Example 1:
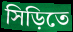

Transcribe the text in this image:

সিড়িতে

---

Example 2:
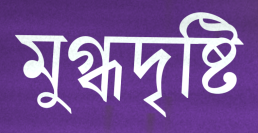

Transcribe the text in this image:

মুগ্ধদৃষ্টি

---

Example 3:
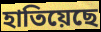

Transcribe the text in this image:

হাতিয়েছে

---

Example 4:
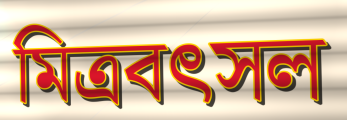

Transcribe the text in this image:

মিত্রবৎসল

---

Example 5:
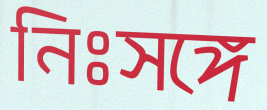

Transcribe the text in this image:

নিঃসঙ্গে